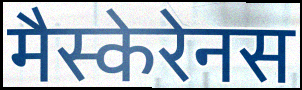
मैस्केरेनस